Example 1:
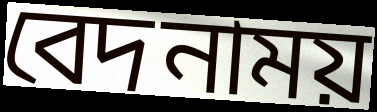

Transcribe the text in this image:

বেদনাময়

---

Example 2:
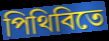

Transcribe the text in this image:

পিথিবিতে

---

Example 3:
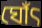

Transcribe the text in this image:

ঘোঁৎ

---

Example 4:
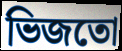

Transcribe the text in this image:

ভিজতো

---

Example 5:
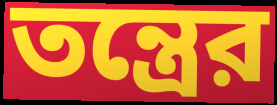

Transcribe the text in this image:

তন্ত্রের